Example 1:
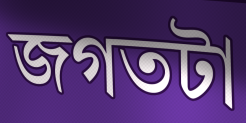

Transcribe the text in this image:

জগতটা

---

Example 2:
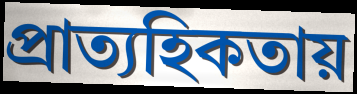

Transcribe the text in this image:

প্রাত্যহিকতায়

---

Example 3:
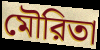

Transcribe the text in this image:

মৌরিতা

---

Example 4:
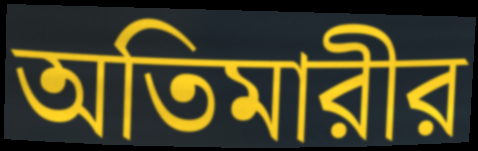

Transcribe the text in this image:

অতিমারীর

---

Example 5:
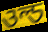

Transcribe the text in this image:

ওল্ড